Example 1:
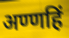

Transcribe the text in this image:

अण्णहिं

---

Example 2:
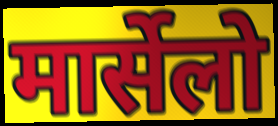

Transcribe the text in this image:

मार्सेलो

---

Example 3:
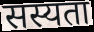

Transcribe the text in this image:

सस्यता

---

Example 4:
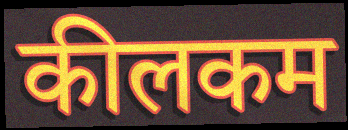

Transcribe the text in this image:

कीलकम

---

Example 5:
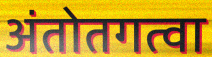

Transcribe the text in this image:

अंतोतगत्वा